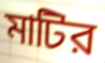
মাটির